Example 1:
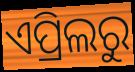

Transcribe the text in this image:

ଏପ୍ରିଲରୁ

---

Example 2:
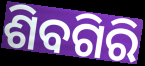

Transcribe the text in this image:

ଶିବଗିରି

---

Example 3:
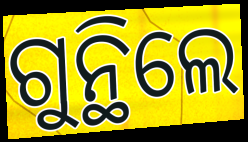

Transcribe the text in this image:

ଗୁନ୍ଥିଲେ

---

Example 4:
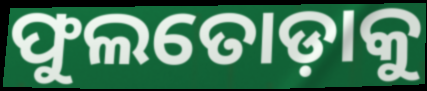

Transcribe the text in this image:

ଫୁଲତୋଡ଼ାକୁ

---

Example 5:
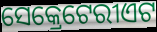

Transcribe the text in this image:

ସେକ୍ରେଟେରୀଏଟ